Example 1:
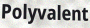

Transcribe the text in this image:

Polyvalent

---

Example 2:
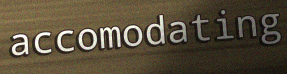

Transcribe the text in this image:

accomodating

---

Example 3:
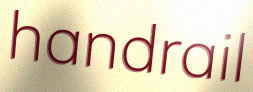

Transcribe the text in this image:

handrail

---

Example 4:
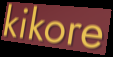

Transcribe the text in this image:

kikore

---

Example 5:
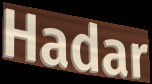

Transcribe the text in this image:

Hadar